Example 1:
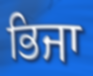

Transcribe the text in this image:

ਭਿਜਾ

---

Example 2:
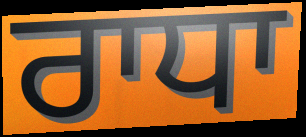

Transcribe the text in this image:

ਰਾਧਾ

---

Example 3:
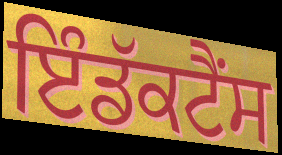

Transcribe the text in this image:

ਇੰਡੱਕਟੈਂਸ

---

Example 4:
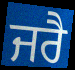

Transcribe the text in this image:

ਜਰੈ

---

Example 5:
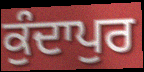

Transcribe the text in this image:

ਕੁੰਦਾਪੁਰ